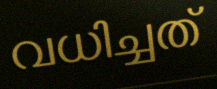
വധിച്ചത്